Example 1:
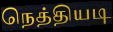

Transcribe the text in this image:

நெத்தியடி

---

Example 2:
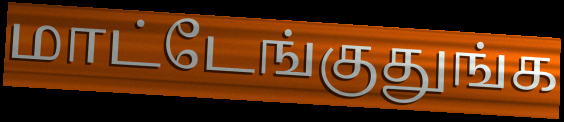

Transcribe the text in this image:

மாட்டேங்குதுங்க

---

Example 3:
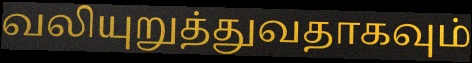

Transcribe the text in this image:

வலியுறுத்துவதாகவும்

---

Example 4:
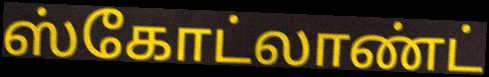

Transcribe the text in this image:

ஸ்கோட்லாண்ட்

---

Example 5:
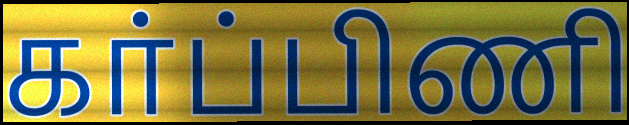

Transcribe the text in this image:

கர்ப்பிணி